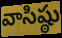
వాసిష్ఠు